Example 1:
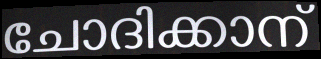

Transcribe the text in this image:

ചോദിക്കാന്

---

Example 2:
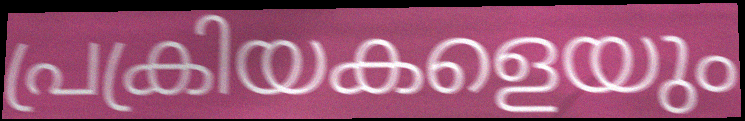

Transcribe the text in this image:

പ്രക്രിയകളെയും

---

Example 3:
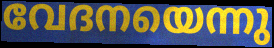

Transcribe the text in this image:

വേദനയെന്നു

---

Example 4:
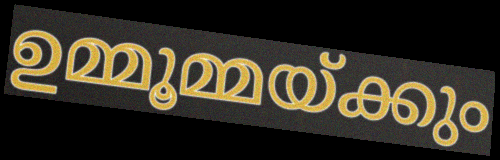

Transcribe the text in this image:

ഉമ്മൂമ്മയ്ക്കും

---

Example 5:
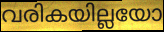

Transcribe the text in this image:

വരികയില്ലയോ